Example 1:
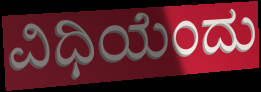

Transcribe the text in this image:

ವಿಧಿಯೆಂದು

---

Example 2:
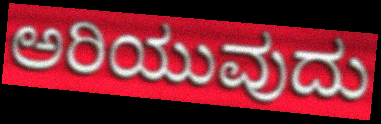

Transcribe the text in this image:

ಅರಿಯುವುದು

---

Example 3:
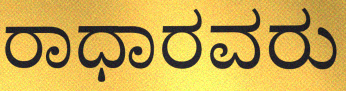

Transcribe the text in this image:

ರಾಧಾರವರು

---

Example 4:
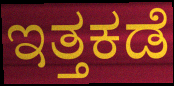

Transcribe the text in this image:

ಇತ್ತಕಡೆ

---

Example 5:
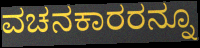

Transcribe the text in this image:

ವಚನಕಾರರನ್ನೂ